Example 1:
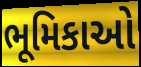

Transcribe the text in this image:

ભૂમિકાઓ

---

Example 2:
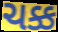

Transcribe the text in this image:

ચક્ક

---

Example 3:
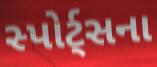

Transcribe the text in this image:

સ્પોર્ટ્સના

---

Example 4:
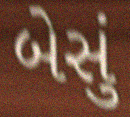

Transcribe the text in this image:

બેસું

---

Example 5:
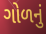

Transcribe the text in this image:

ગોળનું